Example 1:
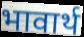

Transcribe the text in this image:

भावार्थ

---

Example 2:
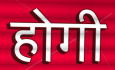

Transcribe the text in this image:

होगी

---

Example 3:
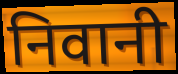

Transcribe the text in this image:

निवानी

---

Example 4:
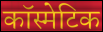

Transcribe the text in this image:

कॉस्मेटिक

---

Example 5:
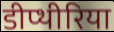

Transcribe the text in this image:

डीप्थीरिया